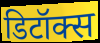
डिटॉक्स